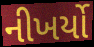
નીખર્યો